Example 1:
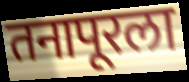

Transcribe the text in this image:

तनापूरला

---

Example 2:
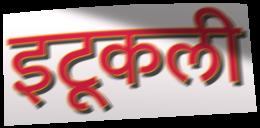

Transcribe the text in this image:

इटूकली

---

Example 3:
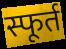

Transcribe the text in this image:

स्फूर्त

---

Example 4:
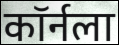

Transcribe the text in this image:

कॉर्नला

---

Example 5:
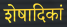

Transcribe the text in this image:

शेषादिकां